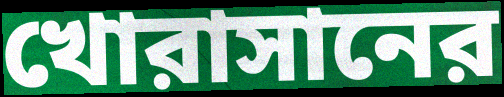
খোরাসানের